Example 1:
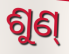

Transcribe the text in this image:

ଶୁଣ୍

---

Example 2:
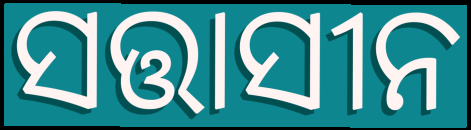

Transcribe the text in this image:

ସତ୍ତାସୀନ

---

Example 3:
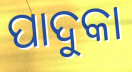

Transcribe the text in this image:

ପାଦୁକା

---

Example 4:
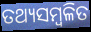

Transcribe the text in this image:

ତଥ୍ୟସମ୍ବଳିତ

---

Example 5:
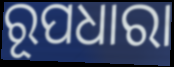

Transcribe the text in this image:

ରୂପଧାରା